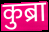
कुब्रा